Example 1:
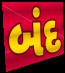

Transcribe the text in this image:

બંદ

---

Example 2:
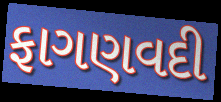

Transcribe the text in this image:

ફાગણવદી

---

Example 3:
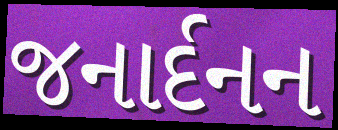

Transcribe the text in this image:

જનાર્દનન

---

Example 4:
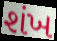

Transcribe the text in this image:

શંખ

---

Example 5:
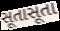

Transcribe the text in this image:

સૂતાસૂતા